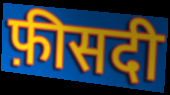
फ़ीसदी